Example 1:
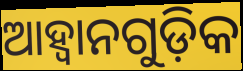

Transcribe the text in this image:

ଆହ୍ବାନଗୁଡ଼ିକ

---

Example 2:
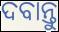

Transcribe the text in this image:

ଦବାନ୍ତୁ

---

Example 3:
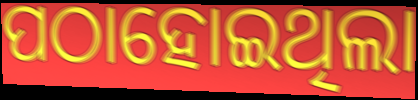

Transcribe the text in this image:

ପଠାହୋଇଥିଲା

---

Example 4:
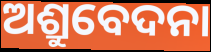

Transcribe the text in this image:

ଅଶ୍ରୁବେଦନା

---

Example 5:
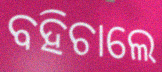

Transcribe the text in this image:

ବହିଚାଲେ